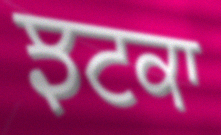
ਝਟਕਾ